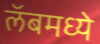
लॅबमध्ये